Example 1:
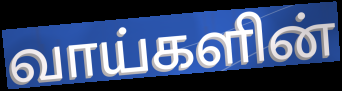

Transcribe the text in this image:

வாய்களின்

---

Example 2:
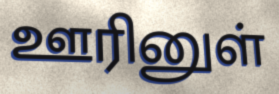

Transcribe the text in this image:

ஊரினுள்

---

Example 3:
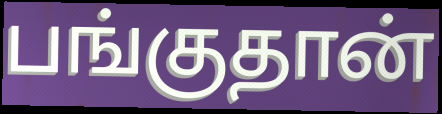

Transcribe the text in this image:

பங்குதான்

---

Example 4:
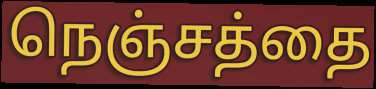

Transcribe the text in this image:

நெஞ்சத்தை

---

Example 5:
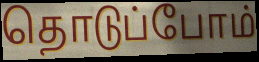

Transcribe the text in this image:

தொடுப்போம்